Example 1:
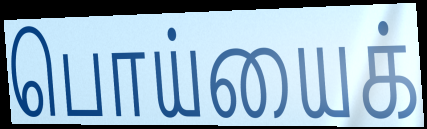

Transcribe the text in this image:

பொய்யைக்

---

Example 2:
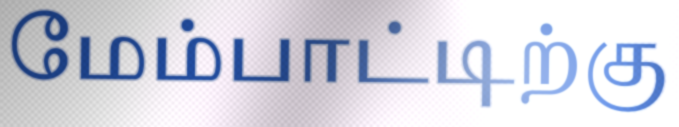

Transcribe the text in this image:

மேம்பாட்டிற்கு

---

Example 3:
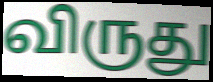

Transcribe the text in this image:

விருது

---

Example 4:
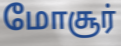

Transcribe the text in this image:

மோசூர்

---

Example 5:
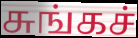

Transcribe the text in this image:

சுங்கச்